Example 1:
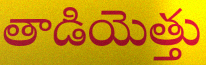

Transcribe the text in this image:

తాడియెత్తు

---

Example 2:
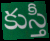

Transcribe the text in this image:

కుస్తీ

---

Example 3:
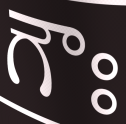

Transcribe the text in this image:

గౌః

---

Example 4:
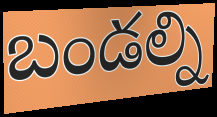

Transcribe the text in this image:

బండల్ని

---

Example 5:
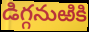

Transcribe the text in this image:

డిగ్గనుఱికి